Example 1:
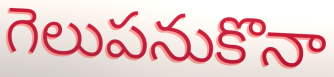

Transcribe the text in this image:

గెలుపనుకొనా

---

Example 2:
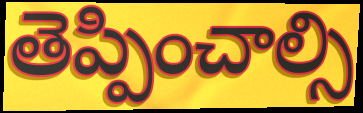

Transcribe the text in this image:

తెప్పించాల్సి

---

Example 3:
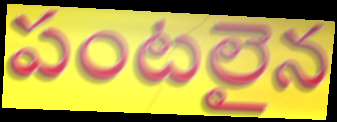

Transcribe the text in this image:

పంటలైన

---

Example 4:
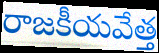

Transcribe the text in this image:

రాజకీయవేత్త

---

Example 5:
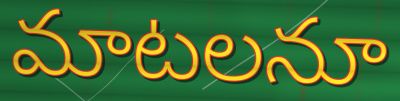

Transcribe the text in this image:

మాటలనూ